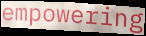
empowering